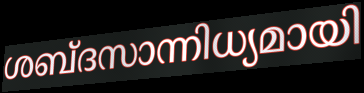
ശബ്ദസാന്നിധ്യമായി